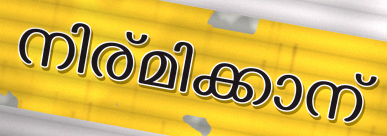
നിര്മിക്കാന്